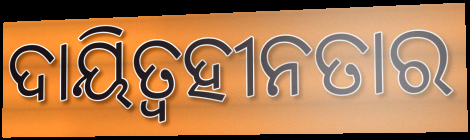
ଦାୟିତ୍ଵହୀନତାର